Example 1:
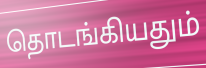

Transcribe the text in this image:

தொடங்கியதும்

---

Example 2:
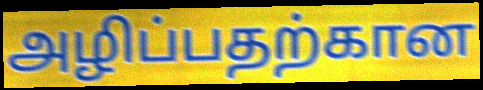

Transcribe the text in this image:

அழிப்பதற்கான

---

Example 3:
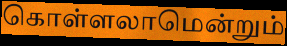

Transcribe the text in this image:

கொள்ளலாமென்றும்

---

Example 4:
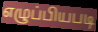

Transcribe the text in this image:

எழுப்பியபடி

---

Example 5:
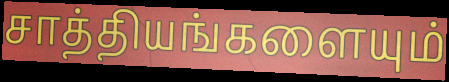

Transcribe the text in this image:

சாத்தியங்களையும்